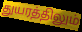
துயரத்திலும்